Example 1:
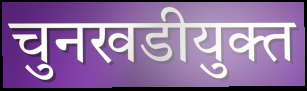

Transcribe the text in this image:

चुनखडीयुक्त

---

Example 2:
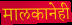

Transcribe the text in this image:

मालकानेही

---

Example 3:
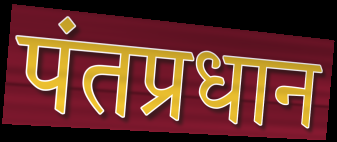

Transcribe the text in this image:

पंतप्रधान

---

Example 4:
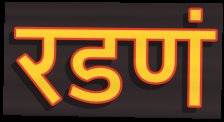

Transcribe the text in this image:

रडणं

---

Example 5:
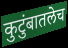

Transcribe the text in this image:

कुटुंबातलेच